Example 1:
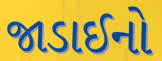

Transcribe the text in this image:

જાડાઈનો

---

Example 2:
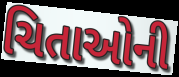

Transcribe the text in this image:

ચિતાઓની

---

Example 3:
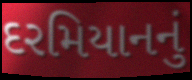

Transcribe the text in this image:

દરમિયાનનું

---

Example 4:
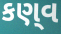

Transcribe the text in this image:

કણ્‌વ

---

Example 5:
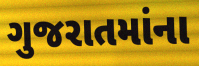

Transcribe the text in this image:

ગુજરાતમાંના